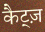
कैट्ज़